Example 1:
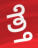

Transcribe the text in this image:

ತ್ತೆ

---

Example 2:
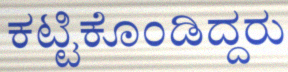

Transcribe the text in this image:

ಕಟ್ಟಿಕೊಂಡಿದ್ದರು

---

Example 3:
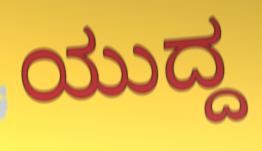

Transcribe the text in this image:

ಯುದ್ದ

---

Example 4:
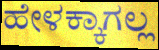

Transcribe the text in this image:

ಹೇಳಕ್ಕಾಗಲ್ಲ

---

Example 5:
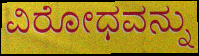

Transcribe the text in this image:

ವಿರೋಧವನ್ನು